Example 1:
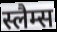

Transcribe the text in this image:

स्लैम्स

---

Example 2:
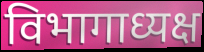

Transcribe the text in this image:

विभागाध्यक्ष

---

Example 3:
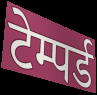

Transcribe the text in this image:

टेम्पर्ड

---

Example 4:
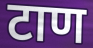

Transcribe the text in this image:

टाण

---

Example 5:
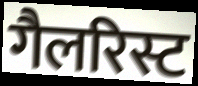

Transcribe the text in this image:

गैलरिस्ट